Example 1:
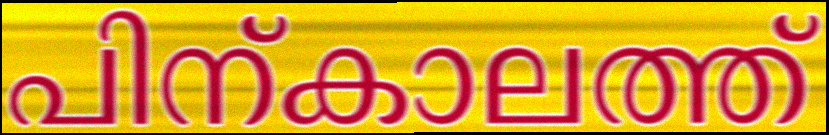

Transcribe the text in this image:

പിന്കാലത്ത്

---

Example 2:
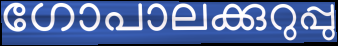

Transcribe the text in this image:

ഗോപാലക്കുറുപ്പു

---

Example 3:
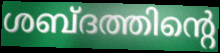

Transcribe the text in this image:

ശബ്ദത്തിന്റെ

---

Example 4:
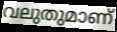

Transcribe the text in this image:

വലുതുമാണ്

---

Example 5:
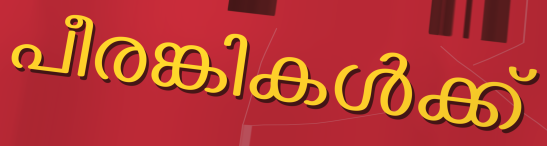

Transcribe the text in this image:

പീരങ്കികൾക്ക്